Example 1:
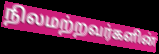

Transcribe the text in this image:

நிலமற்றவர்களின்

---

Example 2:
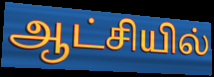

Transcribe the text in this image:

ஆட்சியில்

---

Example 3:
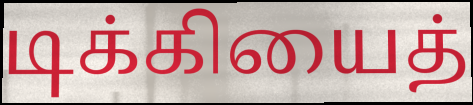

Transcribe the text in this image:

டிக்கியைத்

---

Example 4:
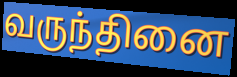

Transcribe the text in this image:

வருந்தினை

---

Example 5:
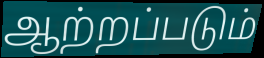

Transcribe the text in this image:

ஆற்றப்படும்